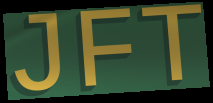
JFT